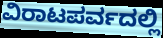
ವಿರಾಟಪರ್ವದಲ್ಲಿ